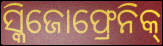
ସ୍କିଜୋଫ୍ରେନିକ୍